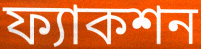
ফ্যাকশন